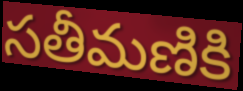
సతీమణికి